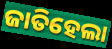
ଜାତିହେଲା